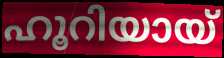
ഹൂറിയായ്